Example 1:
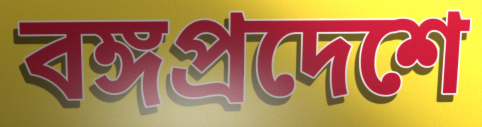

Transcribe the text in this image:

বঙ্গপ্রদেশে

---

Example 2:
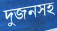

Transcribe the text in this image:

দুজনসহ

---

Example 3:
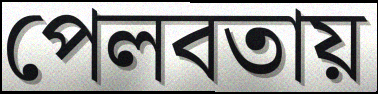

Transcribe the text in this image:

পেলবতায়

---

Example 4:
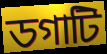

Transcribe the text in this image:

ডগাটি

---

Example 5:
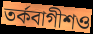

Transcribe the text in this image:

তর্কবাগীশও